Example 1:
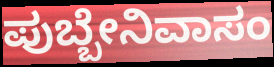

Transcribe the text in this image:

ಪುಬ್ಬೇನಿವಾಸಂ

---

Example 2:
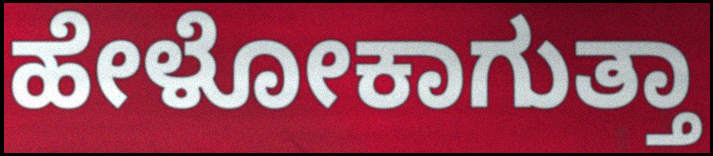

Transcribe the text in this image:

ಹೇಳೋಕಾಗುತ್ತಾ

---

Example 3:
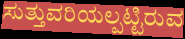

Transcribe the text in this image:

ಸುತ್ತುವರಿಯಲ್ಪಟ್ಟಿರುವ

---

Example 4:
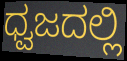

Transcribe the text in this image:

ಧ್ವಜದಲ್ಲಿ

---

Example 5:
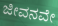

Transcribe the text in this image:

ಜೀವನವೇ